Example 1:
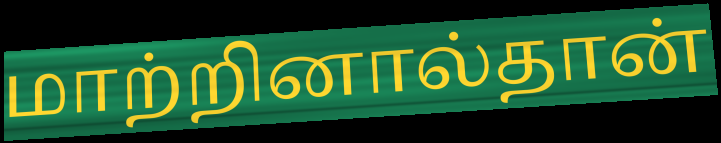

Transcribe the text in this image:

மாற்றினால்தான்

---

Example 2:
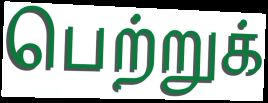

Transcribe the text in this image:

பெற்றுக்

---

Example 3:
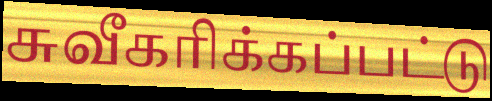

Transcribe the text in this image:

சுவீகரிக்கப்பட்டு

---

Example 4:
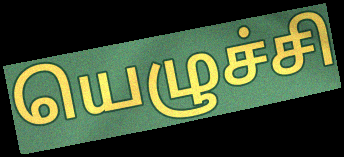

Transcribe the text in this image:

யெழுச்சி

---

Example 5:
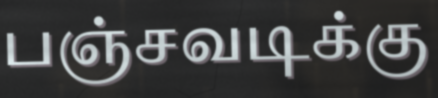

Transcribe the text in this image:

பஞ்சவடிக்கு